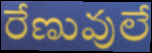
రేణువులే